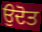
ਉਦੋਤ